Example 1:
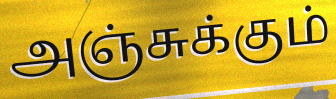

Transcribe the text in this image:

அஞ்சுக்கும்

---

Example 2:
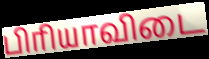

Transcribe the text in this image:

பிரியாவிடை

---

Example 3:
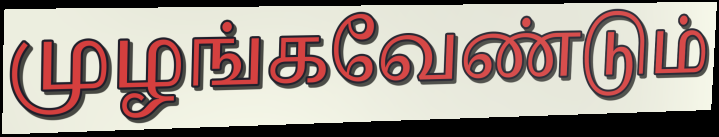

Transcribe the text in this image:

முழங்கவேண்டும்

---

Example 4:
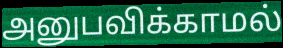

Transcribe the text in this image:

அனுபவிக்காமல்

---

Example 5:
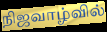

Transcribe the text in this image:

நிஜவாழ்வில்